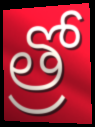
త్రో